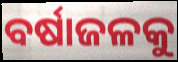
ବର୍ଷାଜଳକୁ